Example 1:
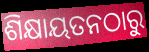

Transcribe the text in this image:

ଶିକ୍ଷାୟତନଠାରୁ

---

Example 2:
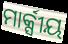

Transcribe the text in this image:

ମାର୍କ୍ସୀୟ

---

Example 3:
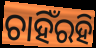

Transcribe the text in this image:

ଚାହିଁରହି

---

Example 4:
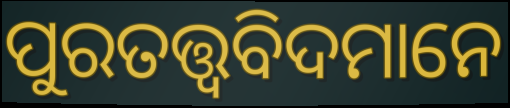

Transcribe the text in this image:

ପୁରତତ୍ତ୍ୱବିଦମାନେ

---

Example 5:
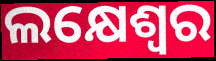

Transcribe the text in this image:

ଲକ୍ଷେଶ୍ଵର